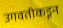
उगवतीकडून